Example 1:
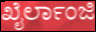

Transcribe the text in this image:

ಖೈರ್ಲಾಂಜಿ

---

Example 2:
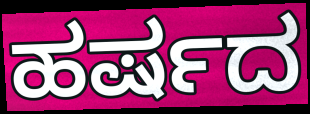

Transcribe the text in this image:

ಹರ್ಷದ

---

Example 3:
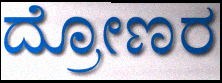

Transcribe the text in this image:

ದ್ರೋಣರ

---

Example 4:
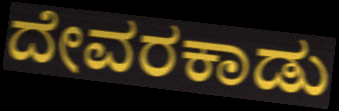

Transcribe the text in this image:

ದೇವರಕಾಡು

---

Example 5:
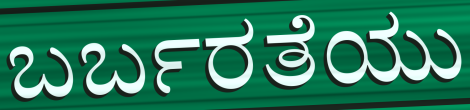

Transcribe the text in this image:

ಬರ್ಬರತೆಯು